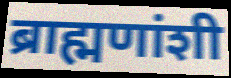
ब्राह्मणांशी